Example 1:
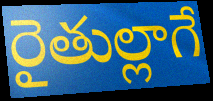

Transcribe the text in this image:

రైతుల్లాగే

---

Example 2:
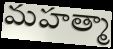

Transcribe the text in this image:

మహత్మా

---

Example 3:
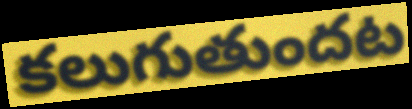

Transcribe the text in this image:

కలుగుతుందట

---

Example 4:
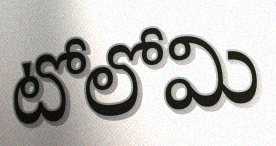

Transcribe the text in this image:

టోలోమి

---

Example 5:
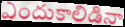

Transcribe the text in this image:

ఎందుకాలిడినా